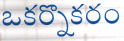
ఒకర్నొకరం